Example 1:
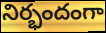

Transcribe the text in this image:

నిర్భందంగా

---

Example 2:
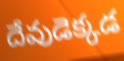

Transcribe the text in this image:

దేవుడెక్కడ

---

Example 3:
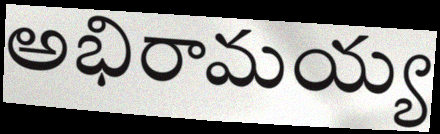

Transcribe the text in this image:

అభిరామయ్య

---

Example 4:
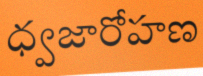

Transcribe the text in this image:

ధ్వజారోహణ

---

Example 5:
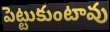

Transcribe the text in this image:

పెట్టుకుంటావు